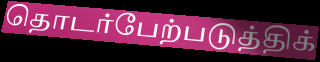
தொடர்பேற்படுத்திக்